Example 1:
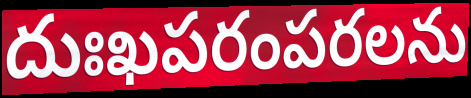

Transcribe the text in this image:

దుఃఖపరంపరలను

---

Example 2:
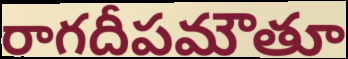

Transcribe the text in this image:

రాగదీపమౌతూ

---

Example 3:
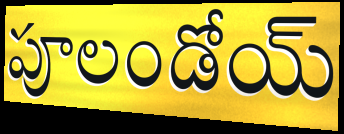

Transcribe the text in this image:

పూలండోయ్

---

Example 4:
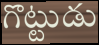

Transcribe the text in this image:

గొట్టుడు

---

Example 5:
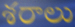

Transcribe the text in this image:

శరాలు